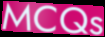
MCQs